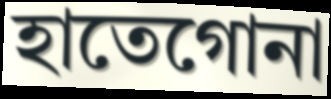
হাতেগোনা